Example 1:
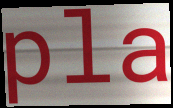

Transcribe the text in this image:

pla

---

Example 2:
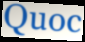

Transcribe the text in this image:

Quoc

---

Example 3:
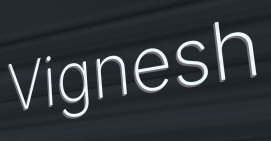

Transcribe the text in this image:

Vignesh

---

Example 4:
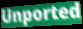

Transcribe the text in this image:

Unported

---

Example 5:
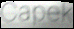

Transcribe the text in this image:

Capek